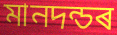
মানদন্ডৰ